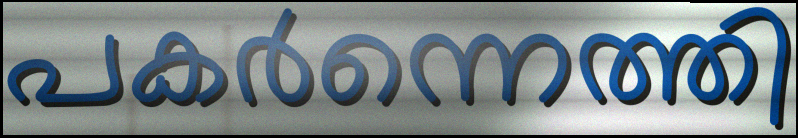
പകർന്നെത്തി